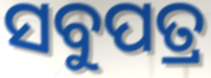
ସବୁପତ୍ର